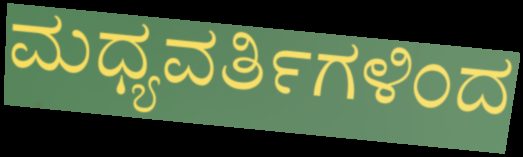
ಮಧ್ಯವರ್ತಿಗಳಿಂದ